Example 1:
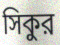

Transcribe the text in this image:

সিকুর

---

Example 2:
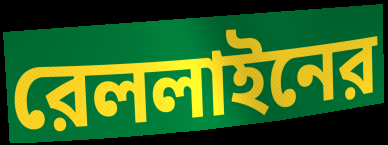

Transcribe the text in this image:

রেললাইনের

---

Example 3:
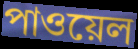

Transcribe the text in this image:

পাওয়েল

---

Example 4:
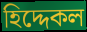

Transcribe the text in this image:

হিদ্দেকল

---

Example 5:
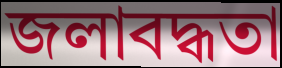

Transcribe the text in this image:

জলাবদ্ধতা